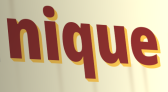
nique